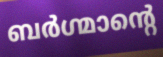
ബർഗ്മാന്റെ